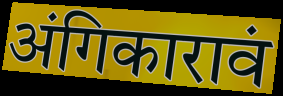
अंगिकारावं